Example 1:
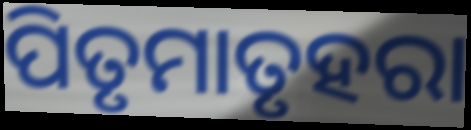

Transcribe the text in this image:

ପିତୃମାତୃହରା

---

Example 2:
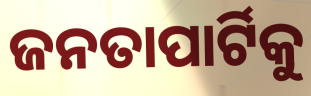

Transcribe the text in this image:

ଜନତାପାର୍ଟିକୁ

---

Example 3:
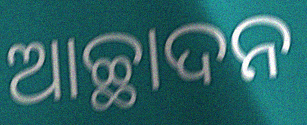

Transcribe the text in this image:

ଆଚ୍ଛାଦନ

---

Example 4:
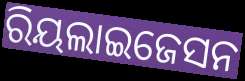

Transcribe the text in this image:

ରିୟଲାଇଜେସନ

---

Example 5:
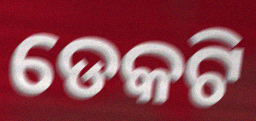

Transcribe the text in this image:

ଡେକଟି